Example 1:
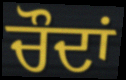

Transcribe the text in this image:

ਚੌਦਾਂ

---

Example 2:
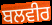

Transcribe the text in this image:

ਬਲਵੀਰ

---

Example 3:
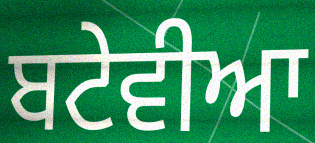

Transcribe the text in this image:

ਬਟੇਵੀਆ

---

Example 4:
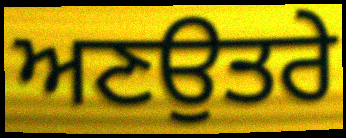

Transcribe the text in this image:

ਅਣਉਤਰੇ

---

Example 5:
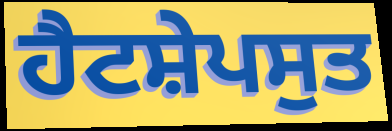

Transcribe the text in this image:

ਹੈਟਸ਼ੇਪਸੁਤ